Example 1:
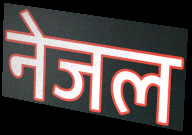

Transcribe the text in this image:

नेजल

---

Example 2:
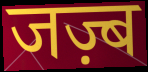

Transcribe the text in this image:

जज़्ब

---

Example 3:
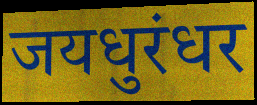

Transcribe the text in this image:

जयधुरंधर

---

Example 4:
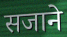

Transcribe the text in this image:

सजाने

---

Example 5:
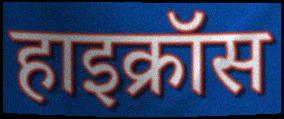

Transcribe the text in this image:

हाइक्रॉस